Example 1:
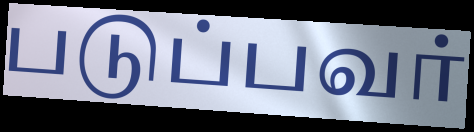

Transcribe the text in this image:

படுப்பவர்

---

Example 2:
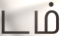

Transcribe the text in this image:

டம்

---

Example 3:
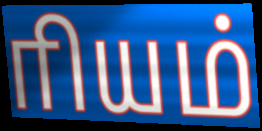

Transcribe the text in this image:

ரியம்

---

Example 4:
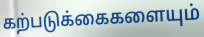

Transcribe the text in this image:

கற்படுக்கைகளையும்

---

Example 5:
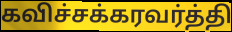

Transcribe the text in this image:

கவிச்சக்கரவர்த்தி